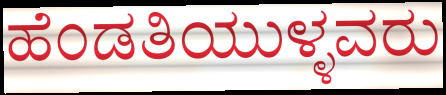
ಹೆಂಡತಿಯುಳ್ಳವರು